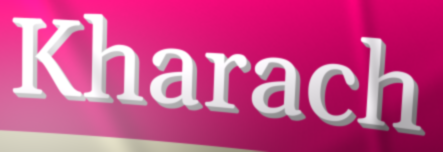
Kharach